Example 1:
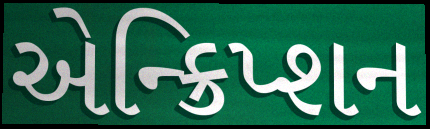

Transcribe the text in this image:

એન્ક્રિપ્શન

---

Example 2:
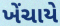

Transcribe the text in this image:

ખેંચાયે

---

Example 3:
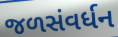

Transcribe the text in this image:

જળસંવર્ધન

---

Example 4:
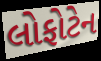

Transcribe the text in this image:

લોફોટેન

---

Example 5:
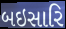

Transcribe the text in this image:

બઇસારિ